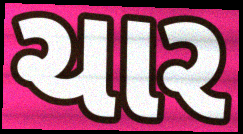
ચાર